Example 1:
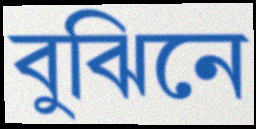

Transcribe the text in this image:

বুঝিনে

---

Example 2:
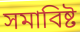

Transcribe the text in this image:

সমাবিষ্ট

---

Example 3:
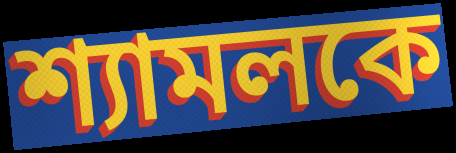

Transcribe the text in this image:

শ্যামলকে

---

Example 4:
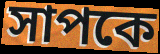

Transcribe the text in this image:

সাপকে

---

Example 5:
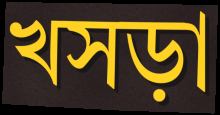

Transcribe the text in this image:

খসড়া